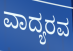
ವಾದ್ಯರವ